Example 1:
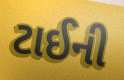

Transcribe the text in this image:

ટાઈની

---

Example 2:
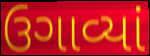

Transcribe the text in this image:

ઉગાવ્યાં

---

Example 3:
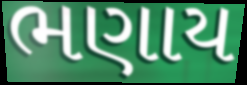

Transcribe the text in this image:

ભણાય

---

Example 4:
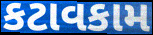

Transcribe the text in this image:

કટાવકામ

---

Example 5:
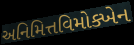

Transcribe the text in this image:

અનિમિત્તવિમોક્ખેન